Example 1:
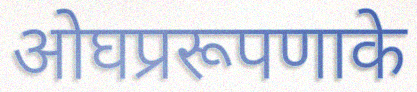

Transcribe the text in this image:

ओघप्ररूपणाके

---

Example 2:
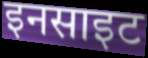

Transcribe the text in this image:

इनसाइट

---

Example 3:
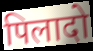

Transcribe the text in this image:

पिलादो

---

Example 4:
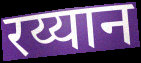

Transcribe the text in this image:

रय्यान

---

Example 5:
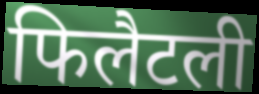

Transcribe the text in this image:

फिलैटली